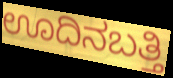
ಊದಿನಬತ್ತಿ